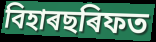
বিহাৰছৰিফত